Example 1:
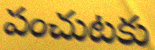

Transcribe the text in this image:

పంచుటకు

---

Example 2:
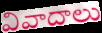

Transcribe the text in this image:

వివాదాలు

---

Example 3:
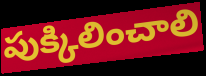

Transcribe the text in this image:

పుక్కిలించాలి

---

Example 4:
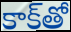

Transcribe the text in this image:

కాక్‌తో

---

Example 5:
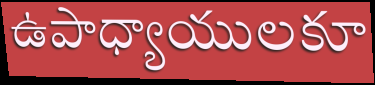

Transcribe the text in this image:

ఉపాధ్యాయులకూ